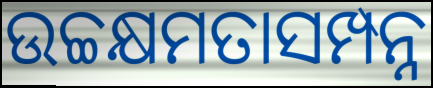
ଉଚ୍ଚକ୍ଷମତାସମ୍ପନ୍ନ